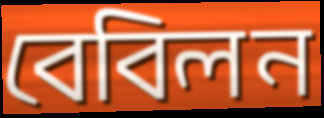
বেবিলন